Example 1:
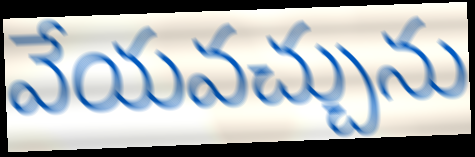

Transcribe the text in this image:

వేయవచ్చును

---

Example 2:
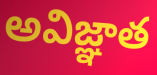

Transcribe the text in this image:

అవిజ్ఞాత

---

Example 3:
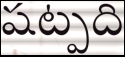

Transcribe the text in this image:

షట్పది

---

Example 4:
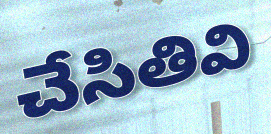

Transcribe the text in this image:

చేసితివి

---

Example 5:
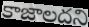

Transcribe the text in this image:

కాజాలదని